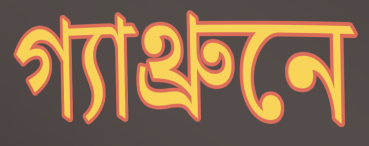
গ্যাথ্রুনে